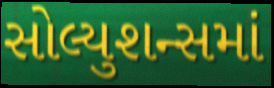
સોલ્યુશન્સમાં